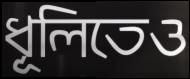
ধূলিতেও